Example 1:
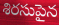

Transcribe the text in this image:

శిరసుపైన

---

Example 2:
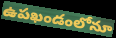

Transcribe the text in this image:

ఉపఖండంలోనూ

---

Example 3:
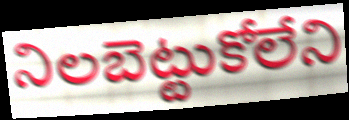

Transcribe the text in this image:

నిలబెట్టుకోలేని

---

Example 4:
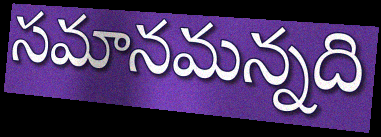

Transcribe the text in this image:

సమానమన్నది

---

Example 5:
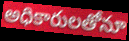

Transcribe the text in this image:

అధికారులతోనూ